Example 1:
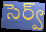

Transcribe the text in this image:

సెర్వ్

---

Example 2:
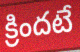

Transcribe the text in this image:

క్రిందటే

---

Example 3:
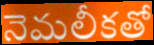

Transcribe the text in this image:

నెమలీకతో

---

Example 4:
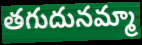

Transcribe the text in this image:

తగుదునమ్మా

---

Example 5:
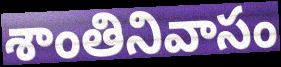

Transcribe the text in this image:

శాంతినివాసం